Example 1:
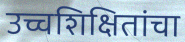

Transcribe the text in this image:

उच्चशिक्षितांचा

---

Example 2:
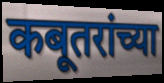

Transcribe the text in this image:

कबूतरांच्या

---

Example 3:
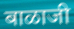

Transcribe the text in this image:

बाळाजी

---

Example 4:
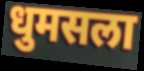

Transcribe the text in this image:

धुमसला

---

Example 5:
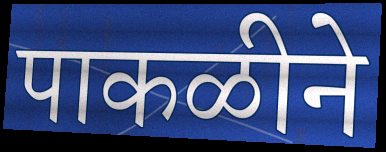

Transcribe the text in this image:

पाकळीने